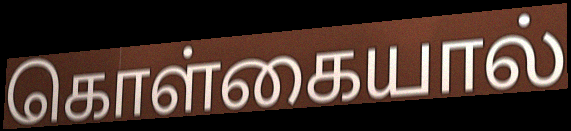
கொள்கையால்